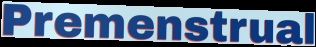
Premenstrual